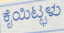
ಕೈಯಿಟ್ಟಳು